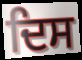
ਦਿਸ